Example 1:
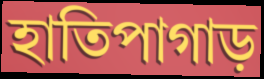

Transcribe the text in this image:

হাতিপাগাড়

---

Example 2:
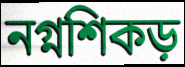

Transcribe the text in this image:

নগ্নশিকড়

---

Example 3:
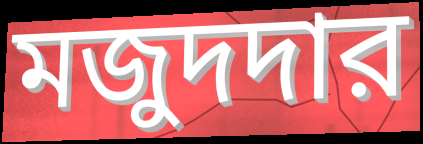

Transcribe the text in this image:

মজুদদার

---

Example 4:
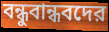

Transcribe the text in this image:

বন্ধুবান্ধবদের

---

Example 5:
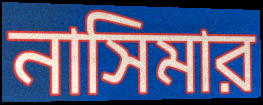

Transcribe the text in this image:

নাসিমার